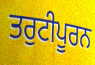
ਤਰੁਟੀਪੂਰਨ